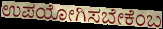
ಉಪಯೋಗಿಸಬೇಕೆಂಬ